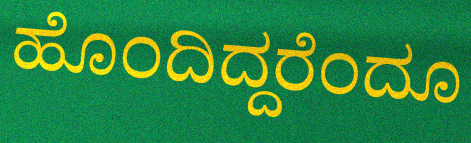
ಹೊಂದಿದ್ದರೆಂದೂ